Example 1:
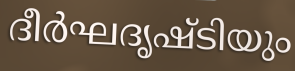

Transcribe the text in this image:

ദീർഘദൃഷ്ടിയും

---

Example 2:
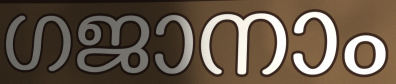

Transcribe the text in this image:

ഗജാനാം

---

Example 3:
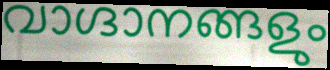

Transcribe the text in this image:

വാഗ്ദാനങ്ങളും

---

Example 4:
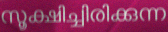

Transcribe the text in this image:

സൂക്ഷിച്ചിരിക്കുന്ന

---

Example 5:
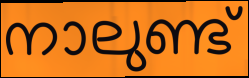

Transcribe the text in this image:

നാലുണ്ട്